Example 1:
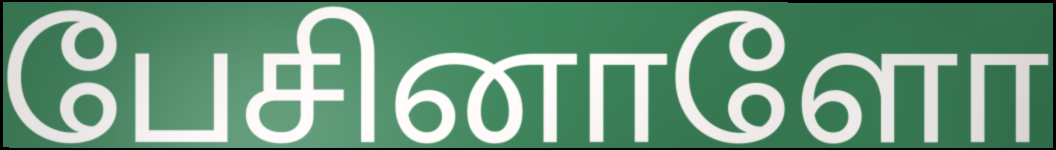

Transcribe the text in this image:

பேசினாளோ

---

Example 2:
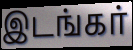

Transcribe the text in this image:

இடங்கர்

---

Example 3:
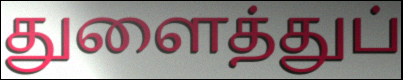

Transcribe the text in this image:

துளைத்துப்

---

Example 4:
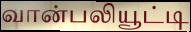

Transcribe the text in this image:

வான்பலியூட்டி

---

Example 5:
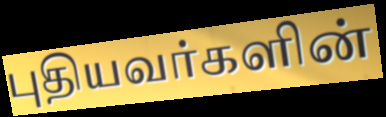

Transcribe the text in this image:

புதியவர்களின்